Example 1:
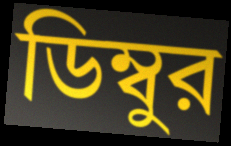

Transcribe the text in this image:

ডিম্বুর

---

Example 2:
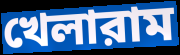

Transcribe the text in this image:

খেলারাম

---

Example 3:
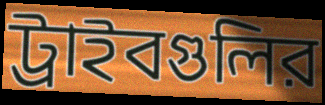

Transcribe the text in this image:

ট্রাইবগুলির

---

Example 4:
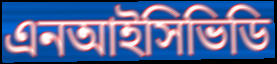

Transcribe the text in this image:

এনআইসিভিডি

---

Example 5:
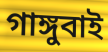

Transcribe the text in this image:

গাঙ্গুবাই